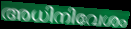
അധിനിവേശം